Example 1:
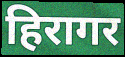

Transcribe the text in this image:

हिरागर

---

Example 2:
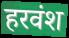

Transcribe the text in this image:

हरवंश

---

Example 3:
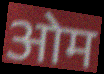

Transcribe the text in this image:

ओम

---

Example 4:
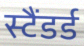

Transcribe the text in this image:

स्टैंडर्ड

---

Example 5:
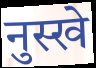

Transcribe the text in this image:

नुस्खे